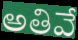
అతివే